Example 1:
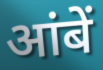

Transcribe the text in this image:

आंबें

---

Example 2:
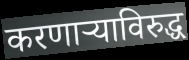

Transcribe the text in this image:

करणाऱ्याविरुद्ध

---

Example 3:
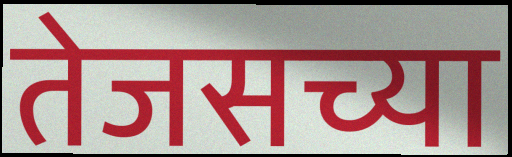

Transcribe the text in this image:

तेजसच्या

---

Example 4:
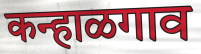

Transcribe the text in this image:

कन्हाळगाव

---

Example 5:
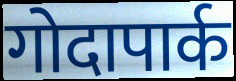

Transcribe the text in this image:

गोदापार्क